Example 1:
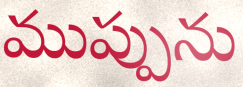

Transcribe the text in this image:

ముప్పును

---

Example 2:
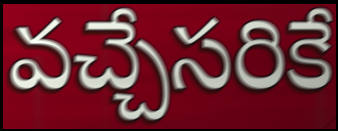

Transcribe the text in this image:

వచ్చేసరికే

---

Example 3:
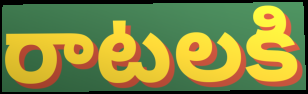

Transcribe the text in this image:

రాటలకి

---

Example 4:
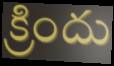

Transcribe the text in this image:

క్రిందు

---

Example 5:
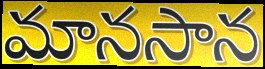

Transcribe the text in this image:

మానసాన